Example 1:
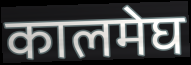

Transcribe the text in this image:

कालमेघ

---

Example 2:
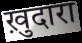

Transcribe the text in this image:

ख़ुदारा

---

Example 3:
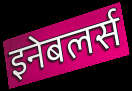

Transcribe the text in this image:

इनेबलर्स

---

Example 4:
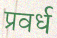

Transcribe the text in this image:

प्रवर्ध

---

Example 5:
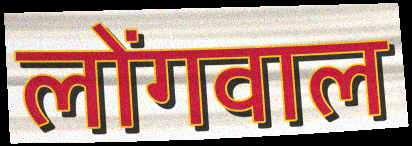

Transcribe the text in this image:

लोंगवाल